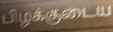
பிழக்குடைய